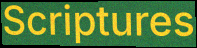
Scriptures